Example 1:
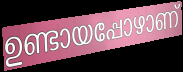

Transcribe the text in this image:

ഉണ്ടായപ്പോഴാണ്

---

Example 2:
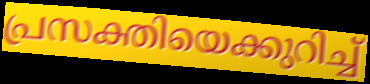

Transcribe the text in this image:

പ്രസക്തിയെക്കുറിച്ച്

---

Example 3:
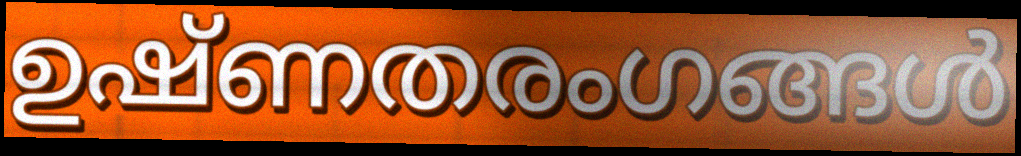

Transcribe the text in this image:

ഉഷ്ണതരംഗങ്ങൾ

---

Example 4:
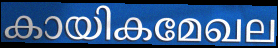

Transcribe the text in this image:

കായികമേഖല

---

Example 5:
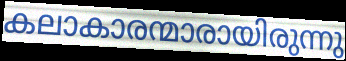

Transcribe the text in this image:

കലാകാരന്മാരായിരുന്നു